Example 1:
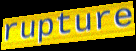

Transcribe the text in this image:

rupture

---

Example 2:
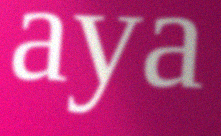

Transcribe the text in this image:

aya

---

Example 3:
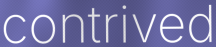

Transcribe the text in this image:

contrived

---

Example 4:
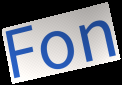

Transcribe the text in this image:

Fon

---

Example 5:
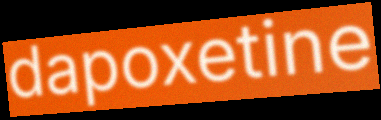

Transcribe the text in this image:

dapoxetine